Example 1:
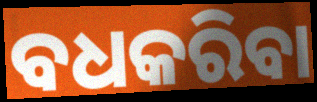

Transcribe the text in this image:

ବଧକରିବା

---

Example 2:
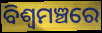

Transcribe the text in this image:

ବିଶ୍ୱମଞ୍ଚରେ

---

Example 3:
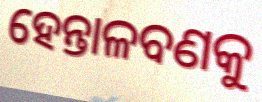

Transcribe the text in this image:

ହେନ୍ତାଳବଣକୁ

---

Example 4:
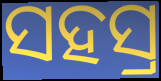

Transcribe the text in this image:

ସହସ୍ର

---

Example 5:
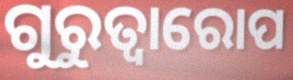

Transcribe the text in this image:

ଗୁରୁତ୍ୱାରୋପ